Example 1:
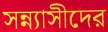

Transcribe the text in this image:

সন্ন্যাসীদের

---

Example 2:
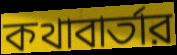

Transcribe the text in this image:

কথাবার্তার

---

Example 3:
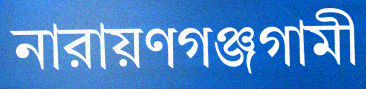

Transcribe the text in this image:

নারায়ণগঞ্জগামী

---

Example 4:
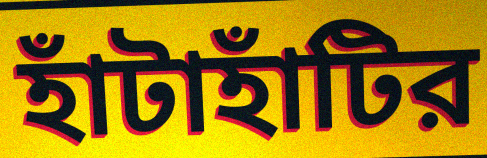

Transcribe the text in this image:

হাঁটাহাঁটির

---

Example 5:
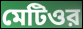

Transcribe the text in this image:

মেটিওর